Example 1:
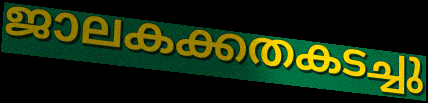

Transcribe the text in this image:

ജാലകക്കതകടച്ചു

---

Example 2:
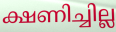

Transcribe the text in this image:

ക്ഷണിച്ചില്ല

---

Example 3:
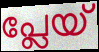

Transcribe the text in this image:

പ്ലേയ്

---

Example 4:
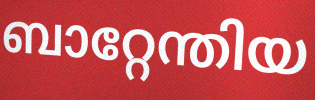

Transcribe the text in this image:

ബാറ്റേന്തിയ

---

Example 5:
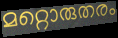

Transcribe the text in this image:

മറ്റൊരുതരം